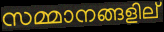
സമ്മാനങ്ങളില്